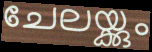
ചേലയ്ക്കും